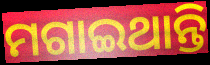
ମଗାଇଥାନ୍ତି